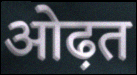
ओढ़त